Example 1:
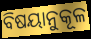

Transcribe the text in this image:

ବିଷୟାନୁକୂଳ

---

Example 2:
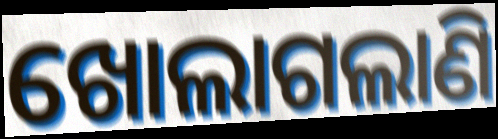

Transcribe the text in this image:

ଖୋଲାଗଲାଣି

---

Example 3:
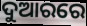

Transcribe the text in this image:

ଦୁଆରରେ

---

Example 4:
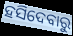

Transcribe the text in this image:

ହସିଦେବାରୁ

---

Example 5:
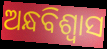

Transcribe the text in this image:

ଅନ୍ଧବିଶ୍ବାସ